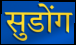
सुडोंग